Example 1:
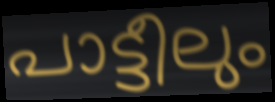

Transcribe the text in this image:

പാട്ടീലും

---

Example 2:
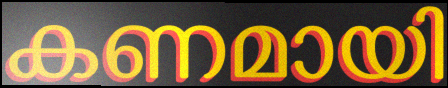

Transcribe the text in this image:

കണമായി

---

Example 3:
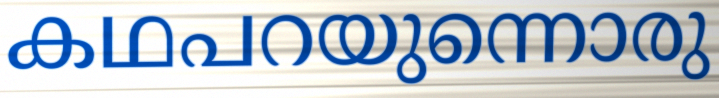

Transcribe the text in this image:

കഥപറയുന്നൊരു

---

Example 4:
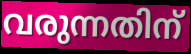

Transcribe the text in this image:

വരുന്നതിന്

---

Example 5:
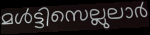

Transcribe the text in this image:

മൾട്ടിസെല്ലുലാർ